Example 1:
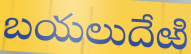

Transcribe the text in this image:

బయలుదేఱి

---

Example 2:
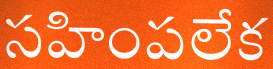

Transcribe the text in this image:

సహింపలేక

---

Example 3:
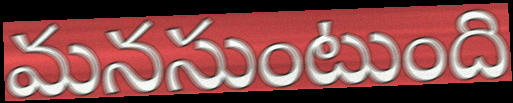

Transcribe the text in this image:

మనసుంటుంది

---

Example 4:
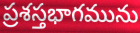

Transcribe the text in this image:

ప్రశస్తభాగమును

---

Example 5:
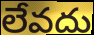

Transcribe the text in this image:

లేవదు